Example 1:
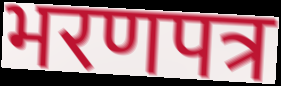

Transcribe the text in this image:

भरणपत्र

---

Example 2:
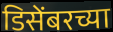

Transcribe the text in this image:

डिसेंबरच्या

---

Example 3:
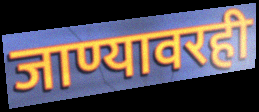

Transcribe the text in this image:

जाण्यावरही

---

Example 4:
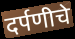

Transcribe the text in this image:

दर्पणीचे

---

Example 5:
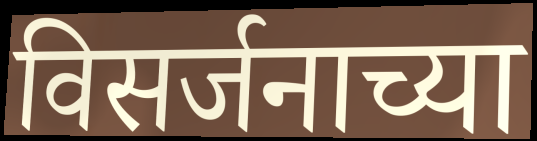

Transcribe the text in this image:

विसर्जनाच्या